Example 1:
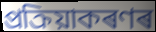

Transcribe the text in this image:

প্ৰক্ৰিয়াকৰণৰ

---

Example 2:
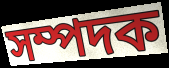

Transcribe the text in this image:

সম্পদক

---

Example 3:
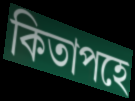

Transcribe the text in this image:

কিতাপহে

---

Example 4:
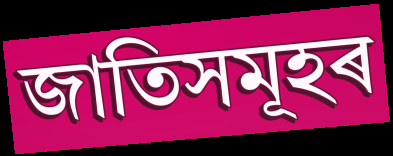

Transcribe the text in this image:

জাতিসমূহৰ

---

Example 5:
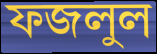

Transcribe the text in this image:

ফজলুল